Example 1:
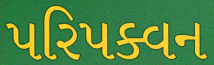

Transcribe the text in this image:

પરિપક્વન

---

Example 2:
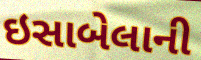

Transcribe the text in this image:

ઇસાબેલાની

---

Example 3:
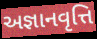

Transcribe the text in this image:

અજ્ઞાનવૃત્તિ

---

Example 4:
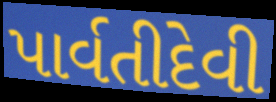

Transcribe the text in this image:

પાર્વતીદેવી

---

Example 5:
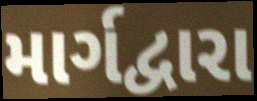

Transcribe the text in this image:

માર્ગદ્વારા